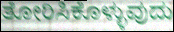
ತೋರಿಸಿಕೊಳ್ಳುವುದು